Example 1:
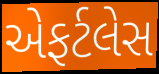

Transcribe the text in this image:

એફર્ટલેસ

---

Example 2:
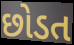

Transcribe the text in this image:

છોડત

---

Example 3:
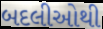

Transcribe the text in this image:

બદલીઓથી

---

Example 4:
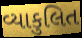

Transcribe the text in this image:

વ્યાકુલિત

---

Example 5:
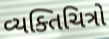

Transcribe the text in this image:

વ્યક્તિચિત્રો